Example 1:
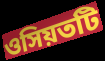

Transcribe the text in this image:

ওসিয়তটি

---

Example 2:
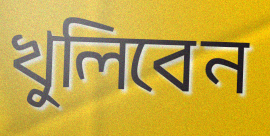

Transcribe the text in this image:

খুলিবেন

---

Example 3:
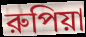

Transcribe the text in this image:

রুপিয়া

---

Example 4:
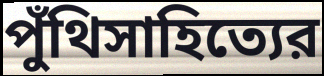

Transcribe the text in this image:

পুঁথিসাহিত্যের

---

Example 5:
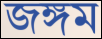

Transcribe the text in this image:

জঙ্গম